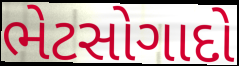
ભેટસોગાદો